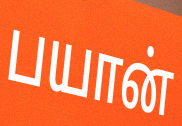
பயான்